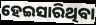
ହେଇସାରିଥିବା